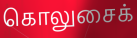
கொலுசைக்